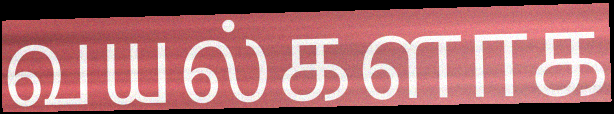
வயல்களாக